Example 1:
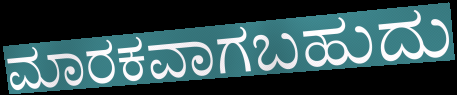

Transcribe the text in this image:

ಮಾರಕವಾಗಬಹುದು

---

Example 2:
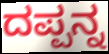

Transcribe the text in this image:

ದಪ್ಪನ್ನ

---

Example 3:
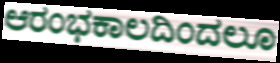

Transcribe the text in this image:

ಆರಂಭಕಾಲದಿಂದಲೂ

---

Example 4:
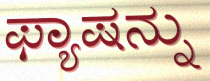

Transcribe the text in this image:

ಫ್ಯಾಷನ್ನು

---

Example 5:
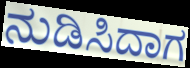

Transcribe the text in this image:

ನುಡಿಸಿದಾಗ